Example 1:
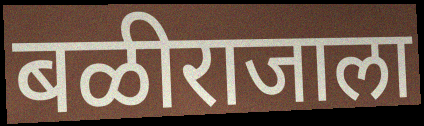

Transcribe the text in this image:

बळीराजाला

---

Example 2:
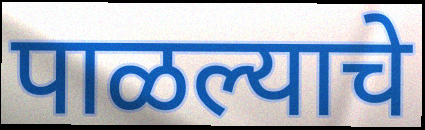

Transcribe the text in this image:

पाळल्याचे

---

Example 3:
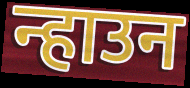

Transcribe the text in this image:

न्हाउन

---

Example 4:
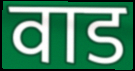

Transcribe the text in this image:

वाड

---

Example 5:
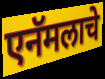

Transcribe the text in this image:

एनॅमलाचे